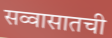
सव्वासातची